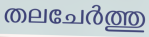
തലചേർത്തു